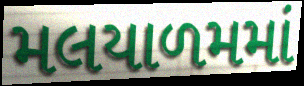
મલયાળમમાં